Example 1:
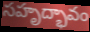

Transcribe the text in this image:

సహృద్భావం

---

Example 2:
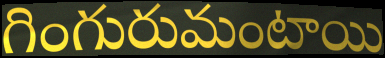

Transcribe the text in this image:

గింగురుమంటాయి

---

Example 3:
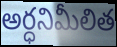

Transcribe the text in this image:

అర్ధనిమీలిత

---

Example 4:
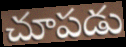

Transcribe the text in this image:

చూపడు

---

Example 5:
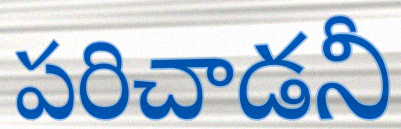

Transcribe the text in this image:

పరిచాడనీ